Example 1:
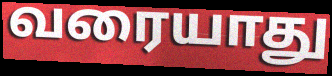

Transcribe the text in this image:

வரையாது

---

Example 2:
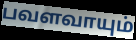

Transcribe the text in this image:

பவளவாயும்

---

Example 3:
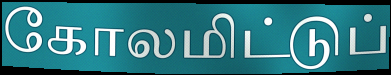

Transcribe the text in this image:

கோலமிட்டுப்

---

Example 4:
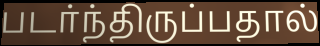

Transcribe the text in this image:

படர்ந்திருப்பதால்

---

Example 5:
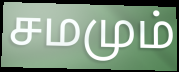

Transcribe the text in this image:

சமமும்